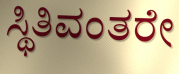
ಸ್ಥಿತಿವಂತರೇ